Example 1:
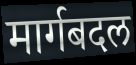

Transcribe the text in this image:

मार्गबदल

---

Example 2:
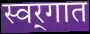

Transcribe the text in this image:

स्वर्गात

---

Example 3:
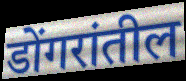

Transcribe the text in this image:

डोंगरांतील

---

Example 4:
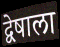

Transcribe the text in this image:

द्वेषाला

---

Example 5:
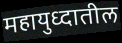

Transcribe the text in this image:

महायुध्दातील